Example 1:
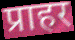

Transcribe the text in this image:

प्राहर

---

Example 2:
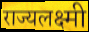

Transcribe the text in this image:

राज्यलक्ष्मी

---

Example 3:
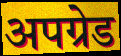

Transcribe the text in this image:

अपग्रेड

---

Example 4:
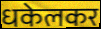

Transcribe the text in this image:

धकेलकर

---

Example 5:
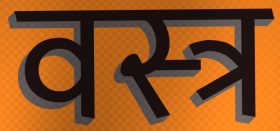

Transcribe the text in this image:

वस्‍त्र